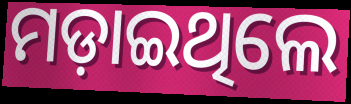
ମଡ଼ାଇଥିଲେ